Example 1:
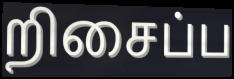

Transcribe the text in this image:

றிசைப்ப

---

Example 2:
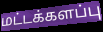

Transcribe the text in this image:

மட்டக்களப்பு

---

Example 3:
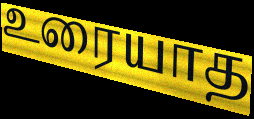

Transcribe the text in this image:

உரையாத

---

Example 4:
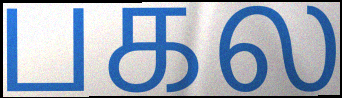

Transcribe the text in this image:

பகல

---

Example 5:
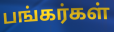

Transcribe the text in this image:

பங்கர்கள்